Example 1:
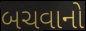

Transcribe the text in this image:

બચવાનો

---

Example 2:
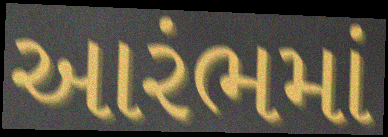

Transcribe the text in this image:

આરંભમાં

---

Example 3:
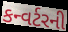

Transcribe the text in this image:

કન્વર્ટરની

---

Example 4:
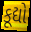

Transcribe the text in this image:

કૂદ્યો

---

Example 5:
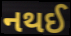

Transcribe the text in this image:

નથઈ